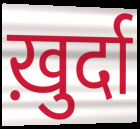
ख़ुर्दा